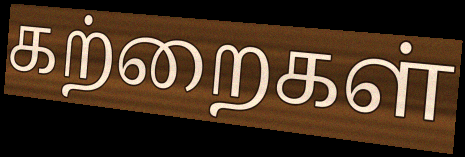
கற்றைகள்